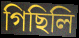
গিছিলি